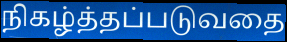
நிகழ்த்தப்படுவதை